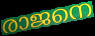
രാജനെ